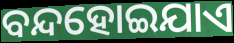
ବନ୍ଦହୋଇଯାଏ